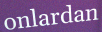
onlardan